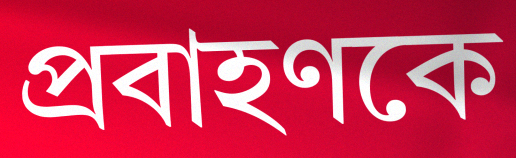
প্রবাহণকে